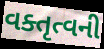
વક્તૃત્વની